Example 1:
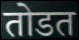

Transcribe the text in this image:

तोडत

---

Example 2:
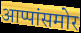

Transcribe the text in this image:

आप्पांसमोर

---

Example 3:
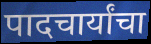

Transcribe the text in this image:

पादचार्यांचा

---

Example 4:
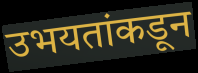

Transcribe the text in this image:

उभयतांकडून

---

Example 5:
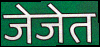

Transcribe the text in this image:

जेजेत